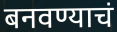
बनवण्याचं